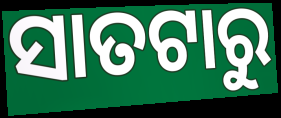
ସାତଟାରୁ